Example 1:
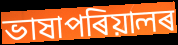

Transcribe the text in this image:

ভাষাপৰিয়ালৰ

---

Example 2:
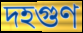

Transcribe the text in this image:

দহগুণ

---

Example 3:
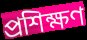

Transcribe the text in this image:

প্ৰশিক্ষণ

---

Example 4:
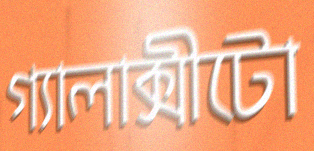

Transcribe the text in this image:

গ্যালাক্সীটো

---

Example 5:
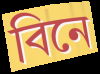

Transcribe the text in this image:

বিনে